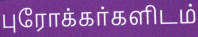
புரோக்கர்களிடம்